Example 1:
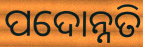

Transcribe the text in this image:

ପଦୋନ୍ନତି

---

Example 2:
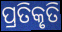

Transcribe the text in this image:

ପ୍ରତିକୃତି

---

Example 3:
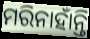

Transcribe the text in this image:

ମରିନାହାଁନ୍ତି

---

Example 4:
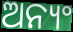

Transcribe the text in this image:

ଅନ୍ୟଂ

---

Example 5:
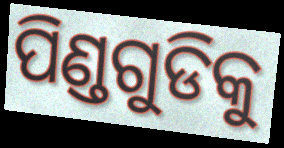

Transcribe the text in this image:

ପିଣ୍ଡଗୁଡିକୁ